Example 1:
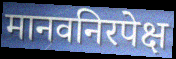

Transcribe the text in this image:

मानवनिरपेक्ष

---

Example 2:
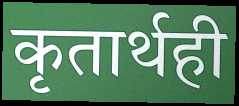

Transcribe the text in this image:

कृतार्थही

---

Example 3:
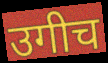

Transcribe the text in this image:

उगीच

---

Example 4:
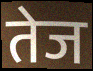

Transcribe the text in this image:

तेज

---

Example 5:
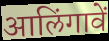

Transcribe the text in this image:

आलिंगावें